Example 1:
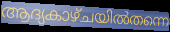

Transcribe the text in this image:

ആദ്യകാഴ്ചയിൽതന്നെ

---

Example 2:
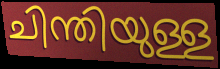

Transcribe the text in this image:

ചിന്തിയുള്ള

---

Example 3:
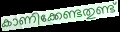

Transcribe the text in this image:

കാണിക്കേണ്ടതുണ്ട്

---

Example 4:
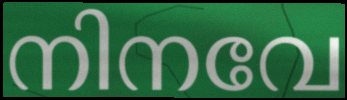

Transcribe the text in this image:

നിനവേ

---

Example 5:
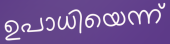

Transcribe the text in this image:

ഉപാധിയെന്ന്